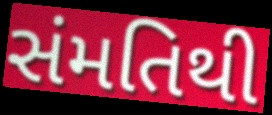
સંમતિથી